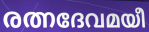
രത്നദേവമയീ